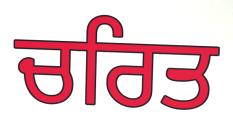
ਚਰਿਤ